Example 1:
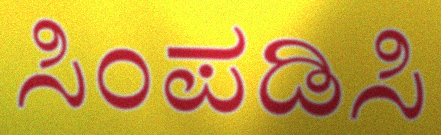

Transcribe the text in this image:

ಸಿಂಪಡಿಸಿ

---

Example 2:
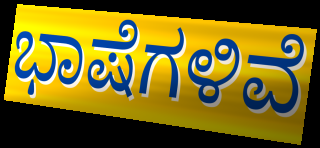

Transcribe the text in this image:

ಭಾಷೆಗಳಿವೆ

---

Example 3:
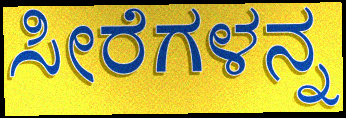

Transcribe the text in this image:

ಸೀರೆಗಳನ್ನ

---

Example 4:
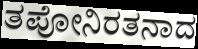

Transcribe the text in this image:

ತಪೋನಿರತನಾದ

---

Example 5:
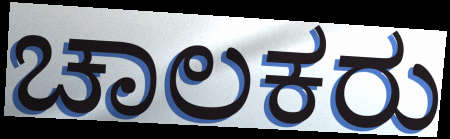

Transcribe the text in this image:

ಚಾಲಕರು